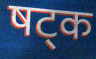
षट्क